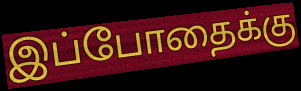
இப்போதைக்கு